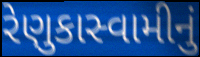
રેણુકાસ્વામીનું